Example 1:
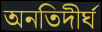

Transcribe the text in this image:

অনতিদীর্ঘ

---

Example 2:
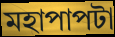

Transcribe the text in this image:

মহাপাপটা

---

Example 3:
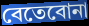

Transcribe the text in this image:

বেতেবোনা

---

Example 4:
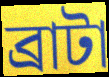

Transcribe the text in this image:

ব্রাটা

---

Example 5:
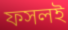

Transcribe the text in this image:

ফসলই